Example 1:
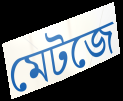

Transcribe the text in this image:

মেটজে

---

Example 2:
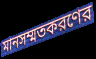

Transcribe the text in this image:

মানসম্মতকরণের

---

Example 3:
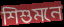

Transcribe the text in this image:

শিশুমনে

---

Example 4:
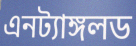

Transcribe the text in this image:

এনট্যাঙ্গলড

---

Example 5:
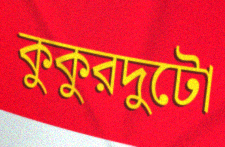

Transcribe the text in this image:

কুকুরদুটো